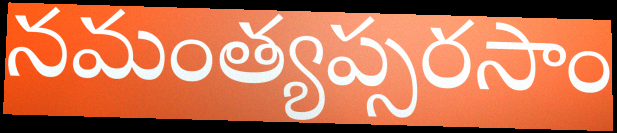
నమంత్యప్సరసాం